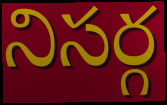
నిసర్గ